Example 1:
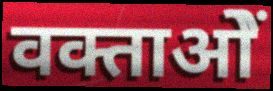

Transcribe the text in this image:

वक्ताओें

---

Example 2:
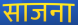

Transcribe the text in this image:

साजना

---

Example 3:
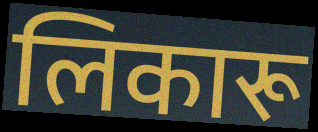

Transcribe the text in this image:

लिकारू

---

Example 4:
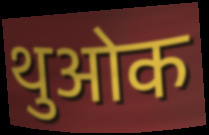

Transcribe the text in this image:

थुओक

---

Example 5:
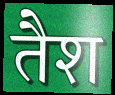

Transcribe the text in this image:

तैश